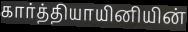
கார்த்தியாயினியின்